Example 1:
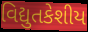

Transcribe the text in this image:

વિદ્યુતકેશીય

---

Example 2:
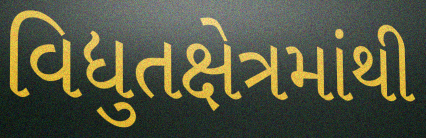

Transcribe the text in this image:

વિદ્યુતક્ષેત્રમાંથી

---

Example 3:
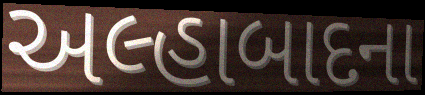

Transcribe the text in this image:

અલ્હાબાદના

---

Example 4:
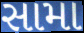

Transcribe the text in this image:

સામા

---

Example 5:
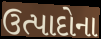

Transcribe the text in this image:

ઉત્પાદોના